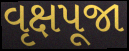
વૃક્ષપૂજા